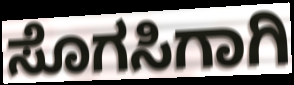
ಸೊಗಸಿಗಾಗಿ